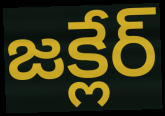
జక్లేర్